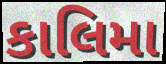
કાલિમા